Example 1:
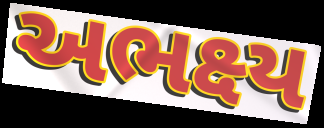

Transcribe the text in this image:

અભક્ષ્ય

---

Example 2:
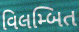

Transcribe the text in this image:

વિલમ્બિત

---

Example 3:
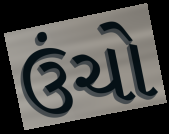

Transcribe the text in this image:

ઉંચો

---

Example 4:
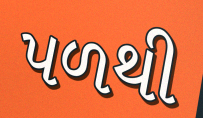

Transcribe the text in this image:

પળથી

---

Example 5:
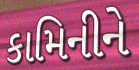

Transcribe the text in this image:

કામિનીને